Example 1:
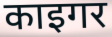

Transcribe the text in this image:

काइगर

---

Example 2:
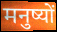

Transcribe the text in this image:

मनुष्यों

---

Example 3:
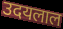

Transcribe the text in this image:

उदयलाल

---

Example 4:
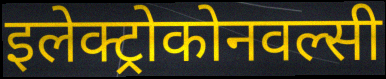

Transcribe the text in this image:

इलेक्ट्रोकोनवल्सी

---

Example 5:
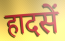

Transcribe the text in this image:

हादसें